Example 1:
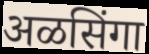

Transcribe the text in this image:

अळसिंगा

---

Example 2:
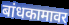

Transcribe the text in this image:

बांधकामावर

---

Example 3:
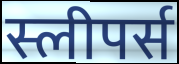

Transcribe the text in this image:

स्लीपर्स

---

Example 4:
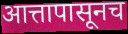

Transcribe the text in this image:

आत्तापासूनच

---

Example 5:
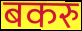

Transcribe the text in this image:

बकरु